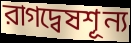
রাগদ্বেষশূন্য